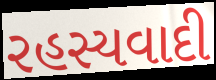
રહસ્યવાદી